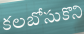
కలబోసుకొని